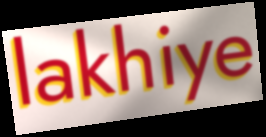
lakhiye